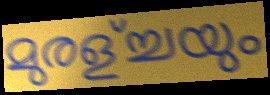
മുരള്ച്ചയും